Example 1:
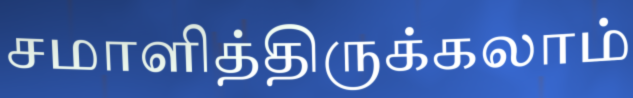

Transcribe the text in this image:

சமாளித்திருக்கலாம்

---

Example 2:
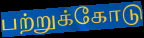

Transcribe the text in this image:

பற்றுக்கோடு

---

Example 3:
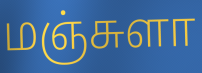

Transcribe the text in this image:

மஞ்சுளா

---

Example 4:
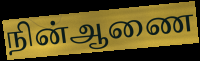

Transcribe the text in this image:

நின்ஆணை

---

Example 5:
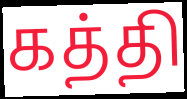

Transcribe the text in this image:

கத்தி